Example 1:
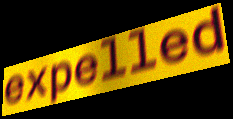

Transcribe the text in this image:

expelled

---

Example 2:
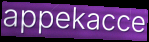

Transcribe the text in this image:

appekacce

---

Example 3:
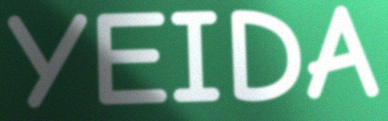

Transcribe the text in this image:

YEIDA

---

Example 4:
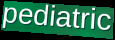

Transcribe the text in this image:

pediatric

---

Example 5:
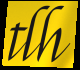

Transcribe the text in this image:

tlh